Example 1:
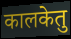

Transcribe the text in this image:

कालकेतु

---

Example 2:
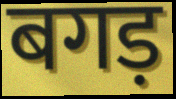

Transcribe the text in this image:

बगड़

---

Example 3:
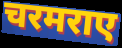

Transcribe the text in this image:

चरमराए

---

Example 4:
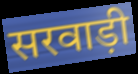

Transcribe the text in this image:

सरवाड़ी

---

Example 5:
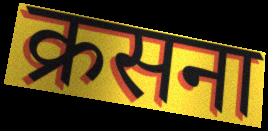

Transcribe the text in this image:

क्रसना